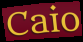
Caio